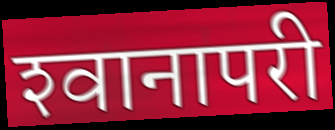
श्वानापरी